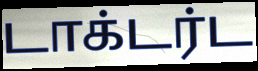
டாக்டர்ட